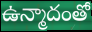
ఉన్మాదంతో